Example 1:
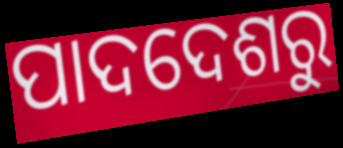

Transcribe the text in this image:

ପାଦଦେଶରୁ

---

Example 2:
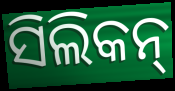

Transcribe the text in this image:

ସିଲିକନ୍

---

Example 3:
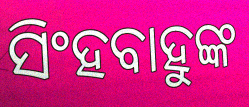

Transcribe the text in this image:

ସିଂହବାହୁଙ୍କ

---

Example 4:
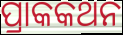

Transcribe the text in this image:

ପ୍ରାକକଥନ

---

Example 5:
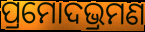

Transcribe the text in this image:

ପ୍ରମୋଦଭ୍ରମଣ